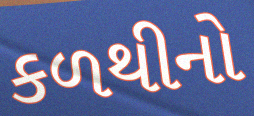
કળથીનો